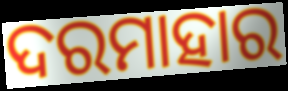
ଦରମାହାର